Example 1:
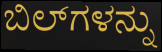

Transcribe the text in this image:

ಬಿಲ್‌ಗಳನ್ನು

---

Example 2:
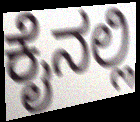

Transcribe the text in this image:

ಕೈನಲ್ಲಿ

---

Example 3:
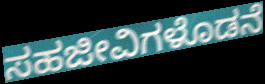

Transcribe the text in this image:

ಸಹಜೀವಿಗಳೊಡನೆ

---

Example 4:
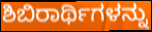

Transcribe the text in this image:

ಶಿಬಿರಾರ್ಥಿಗಳನ್ನು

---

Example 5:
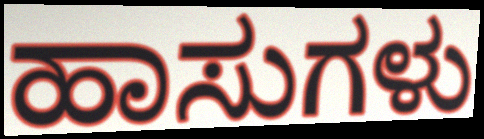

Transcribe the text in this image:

ಹಾಸುಗಳು